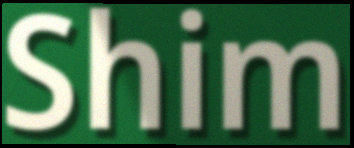
Shim